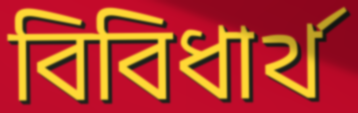
বিবিধার্থ